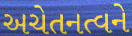
અચેતનત્વને